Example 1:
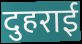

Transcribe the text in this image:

दुहराई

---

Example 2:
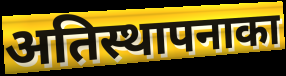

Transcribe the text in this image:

अतिस्थापनाका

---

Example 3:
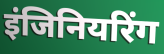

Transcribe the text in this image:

इंजिनियरिंग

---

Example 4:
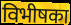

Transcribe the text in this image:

विभीषका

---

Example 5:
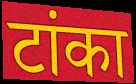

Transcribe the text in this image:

टांका